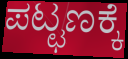
ಪಟ್ಟಣಕ್ಕೆ